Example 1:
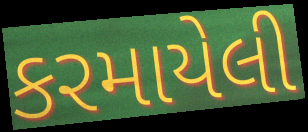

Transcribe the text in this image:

કરમાયેલી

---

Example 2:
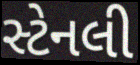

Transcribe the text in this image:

સ્ટેનલી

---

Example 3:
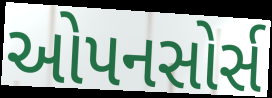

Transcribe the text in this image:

ઓપનસોર્સ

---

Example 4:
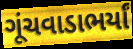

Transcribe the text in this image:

ગૂંચવાડાભર્યાં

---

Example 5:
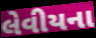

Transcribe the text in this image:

લેવીયના